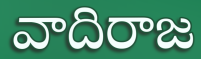
వాదిరాజ